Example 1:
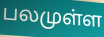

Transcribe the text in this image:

பலமுள்ள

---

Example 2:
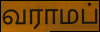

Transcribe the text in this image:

வராமப்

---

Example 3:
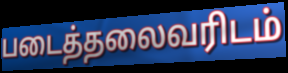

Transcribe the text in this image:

படைத்தலைவரிடம்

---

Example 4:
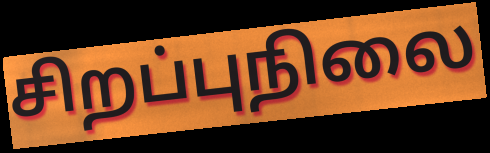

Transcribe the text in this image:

சிறப்புநிலை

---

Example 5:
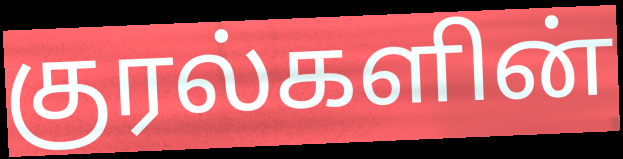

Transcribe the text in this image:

குரல்களின்